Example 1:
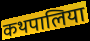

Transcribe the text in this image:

कथपालिया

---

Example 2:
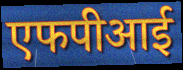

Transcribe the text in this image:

एफपीआई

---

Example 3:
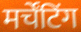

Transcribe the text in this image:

मर्चेंटिंग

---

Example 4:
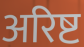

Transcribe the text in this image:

अरिष्ट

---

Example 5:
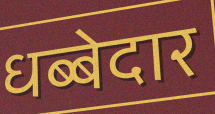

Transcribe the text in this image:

धब्बेदार